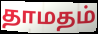
தாமதம்